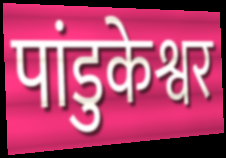
पांडुकेश्वर